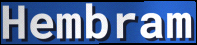
Hembram